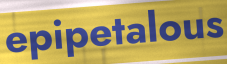
epipetalous